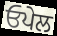
ਓਪੇਲ